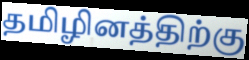
தமிழினத்திற்கு